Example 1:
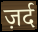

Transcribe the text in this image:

ज़र्द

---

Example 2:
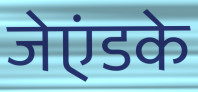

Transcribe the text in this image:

जेएंडके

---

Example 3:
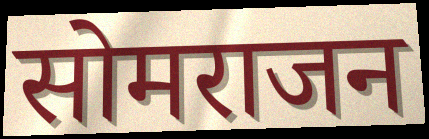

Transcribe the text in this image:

सोमराजन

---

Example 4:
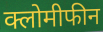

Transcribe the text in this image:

क्लोमीफीन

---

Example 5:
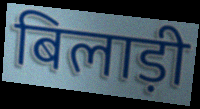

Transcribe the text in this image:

बिलाड़ी